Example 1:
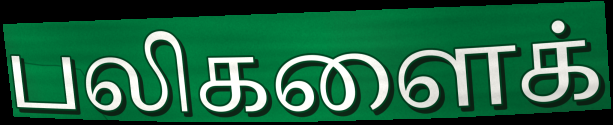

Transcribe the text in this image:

பலிகளைக்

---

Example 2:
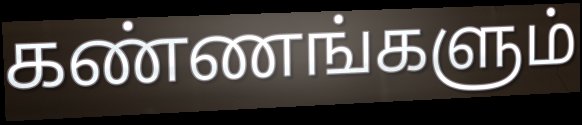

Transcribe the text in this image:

கண்ணங்களும்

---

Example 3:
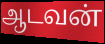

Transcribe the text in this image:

ஆடவன்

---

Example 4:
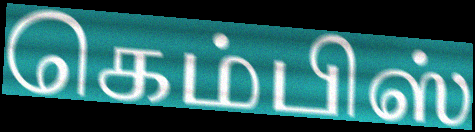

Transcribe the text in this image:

கெம்பிஸ்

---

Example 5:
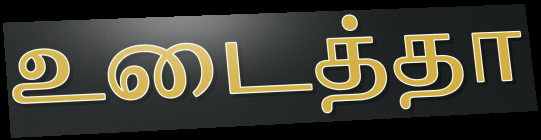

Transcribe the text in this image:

உடைத்தா